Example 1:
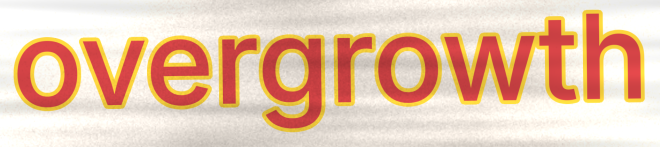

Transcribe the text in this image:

overgrowth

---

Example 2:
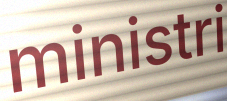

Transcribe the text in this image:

ministri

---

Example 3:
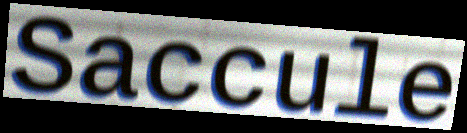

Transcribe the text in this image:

Saccule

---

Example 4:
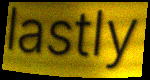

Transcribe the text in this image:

lastly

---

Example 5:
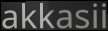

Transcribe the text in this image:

akkasii